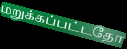
மறுக்கப்பட்டதோ